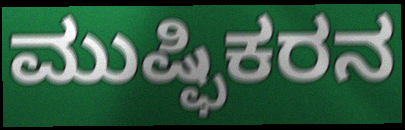
ಮುಷ್ಫಿಕರನ